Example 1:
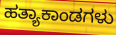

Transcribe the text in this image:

ಹತ್ಯಾಕಾಂಡಗಳು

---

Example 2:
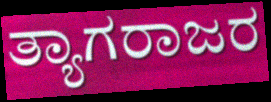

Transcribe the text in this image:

ತ್ಯಾಗರಾಜರ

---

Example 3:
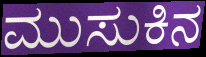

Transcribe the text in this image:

ಮುಸುಕಿನ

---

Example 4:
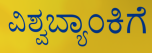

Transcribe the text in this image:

ವಿಶ್ವಬ್ಯಾಂಕಿಗೆ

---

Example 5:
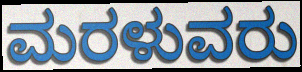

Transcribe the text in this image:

ಮರಳುವರು